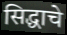
सिद्धाचे